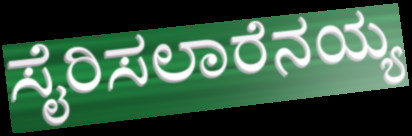
ಸೈರಿಸಲಾರೆನಯ್ಯ